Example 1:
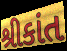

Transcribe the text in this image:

શ્રીકાંત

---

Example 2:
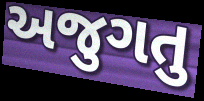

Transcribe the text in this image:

અજુગતુ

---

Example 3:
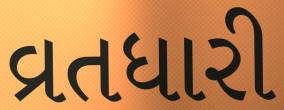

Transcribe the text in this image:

વ્રતધારી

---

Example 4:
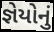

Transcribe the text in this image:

જ્ઞેયોનું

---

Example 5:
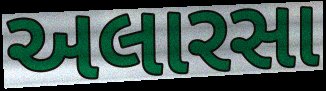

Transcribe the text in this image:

અલારસા